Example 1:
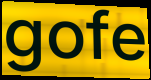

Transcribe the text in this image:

gofe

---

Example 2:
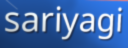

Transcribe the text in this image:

sariyagi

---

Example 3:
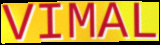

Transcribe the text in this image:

VIMAL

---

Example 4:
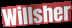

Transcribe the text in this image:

Willsher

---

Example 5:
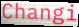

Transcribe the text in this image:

Changi